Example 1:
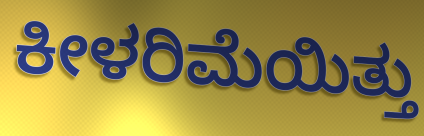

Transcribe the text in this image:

ಕೀಳರಿಮೆಯಿತ್ತು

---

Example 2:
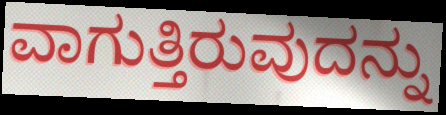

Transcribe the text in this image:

ವಾಗುತ್ತಿರುವುದನ್ನು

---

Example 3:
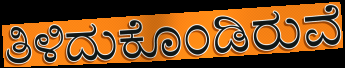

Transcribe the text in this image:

ತಿಳಿದುಕೊಂಡಿರುವೆ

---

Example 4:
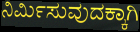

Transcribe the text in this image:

ನಿರ್ಮಿಸುವುದಕ್ಕಾಗಿ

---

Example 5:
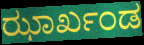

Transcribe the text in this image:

ಝಾರ್ಖಂಡ